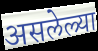
असलेल्या